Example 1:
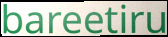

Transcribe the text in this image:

bareetiru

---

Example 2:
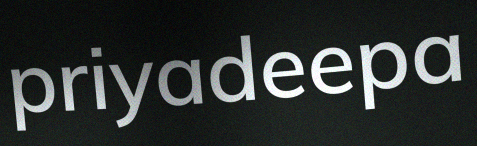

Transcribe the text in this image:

priyadeepa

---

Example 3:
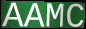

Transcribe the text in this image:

AAMC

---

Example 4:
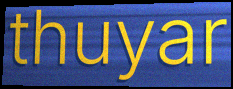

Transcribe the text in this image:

thuyar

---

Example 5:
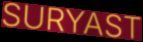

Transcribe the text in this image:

SURYAST